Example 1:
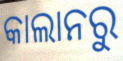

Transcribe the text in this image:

କାଲାନରୁ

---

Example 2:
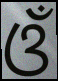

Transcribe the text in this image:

ଓଁ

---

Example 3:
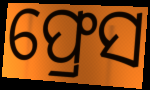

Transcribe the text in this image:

ଫ୍ରେସ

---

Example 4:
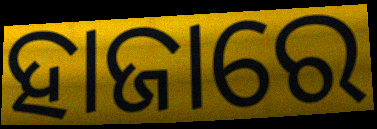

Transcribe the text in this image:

ହାଜାରେ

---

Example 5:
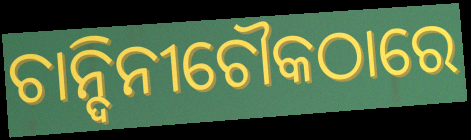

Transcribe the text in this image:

ଚାନ୍ଦିନୀଚୌକଠାରେ